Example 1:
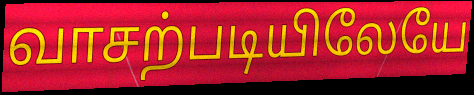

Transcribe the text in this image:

வாசற்படியிலேயே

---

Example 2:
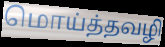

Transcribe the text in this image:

மொய்த்தவழி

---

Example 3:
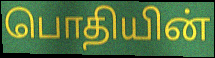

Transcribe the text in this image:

பொதியின்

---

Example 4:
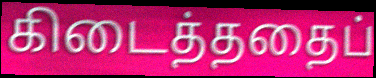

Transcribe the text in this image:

கிடைத்ததைப்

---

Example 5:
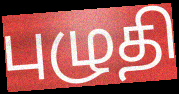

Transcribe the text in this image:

புழுதி